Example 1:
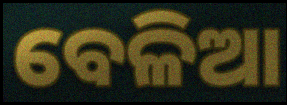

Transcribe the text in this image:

ବେଳିଆ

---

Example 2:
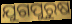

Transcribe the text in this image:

ଯୁଗପୁରୁଷ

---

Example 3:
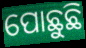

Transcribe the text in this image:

ପୋଛୁଛି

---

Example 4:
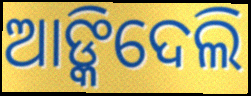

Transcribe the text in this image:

ଆଙ୍କିଦେଲି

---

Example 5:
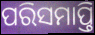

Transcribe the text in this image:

ପରିସମାପ୍ତି